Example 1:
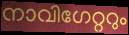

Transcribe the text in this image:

നാവിഗേറ്ററും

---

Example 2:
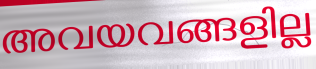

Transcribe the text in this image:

അവയവങ്ങളില്ല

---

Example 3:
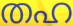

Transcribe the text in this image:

തഹ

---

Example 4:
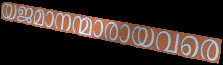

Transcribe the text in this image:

യജമാനന്മാരായവരെ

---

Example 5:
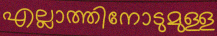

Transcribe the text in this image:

എല്ലാത്തിനോടുമുള്ള